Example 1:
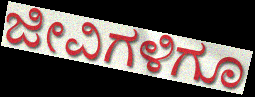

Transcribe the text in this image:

ಜೀವಿಗಳಿಗೂ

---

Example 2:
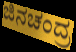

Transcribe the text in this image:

ಜಿನಚಂದ್ರ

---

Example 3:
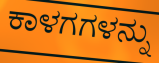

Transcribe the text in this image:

ಕಾಳಗಗಳನ್ನು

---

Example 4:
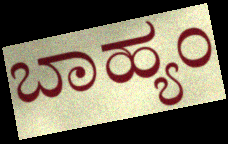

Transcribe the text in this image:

ಬಾಹ್ಯಂ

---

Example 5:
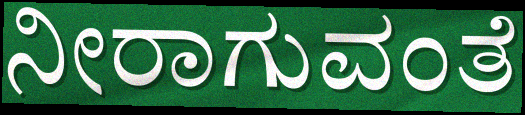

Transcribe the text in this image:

ನೀರಾಗುವಂತೆ